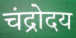
चंद्रोदय